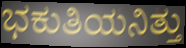
ಭಕುತಿಯನಿತ್ತು